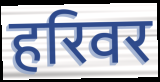
हरिवर